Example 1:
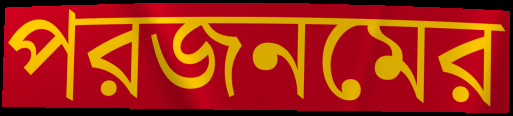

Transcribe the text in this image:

পরজনমের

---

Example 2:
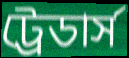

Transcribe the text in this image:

ট্রেডার্স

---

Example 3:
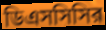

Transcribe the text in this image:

ডিএসসিসির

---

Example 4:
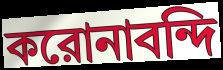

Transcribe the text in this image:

করোনাবন্দি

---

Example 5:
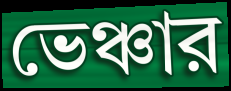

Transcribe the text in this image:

ভেঞ্চার